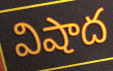
విషాద